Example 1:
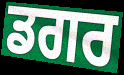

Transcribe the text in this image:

ਡਗਰ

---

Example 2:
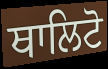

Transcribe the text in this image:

ਥਾਲਿਟੋ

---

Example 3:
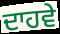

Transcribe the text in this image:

ਦਾਹਵੇ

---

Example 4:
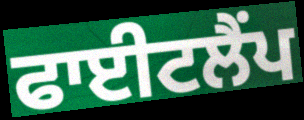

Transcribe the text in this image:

ਫਾਈਟਲੈਂਪ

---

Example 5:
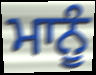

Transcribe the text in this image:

ਮਾਨੂੰ